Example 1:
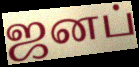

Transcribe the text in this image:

ஜனப்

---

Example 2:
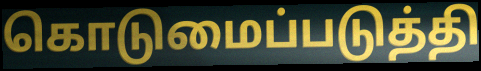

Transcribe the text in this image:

கொடுமைப்படுத்தி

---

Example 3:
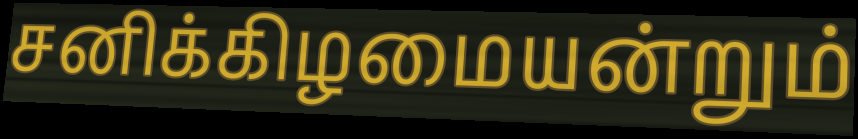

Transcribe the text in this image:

சனிக்கிழமையன்றும்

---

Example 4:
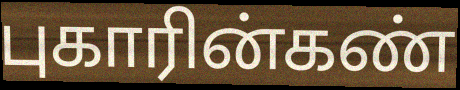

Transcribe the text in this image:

புகாரின்கண்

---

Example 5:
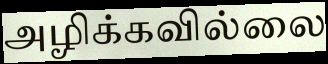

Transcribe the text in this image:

அழிக்கவில்லை